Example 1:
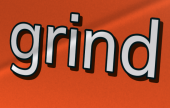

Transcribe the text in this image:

grind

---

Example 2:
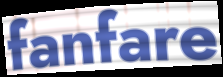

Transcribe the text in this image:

fanfare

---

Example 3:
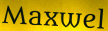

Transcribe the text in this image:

Maxwel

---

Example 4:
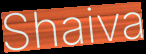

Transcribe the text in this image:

Shaiva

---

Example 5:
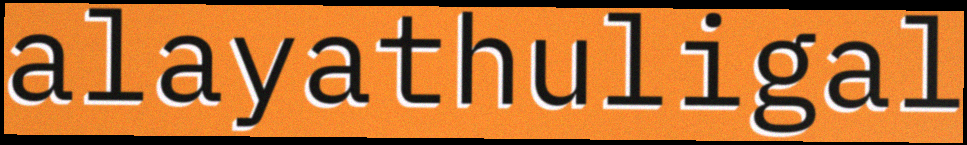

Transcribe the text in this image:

alayathuligal